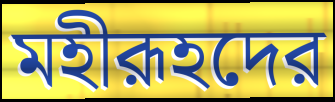
মহীরূহদের